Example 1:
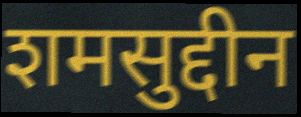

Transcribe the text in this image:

शमसुद्दीन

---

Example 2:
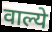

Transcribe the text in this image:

वाल्ये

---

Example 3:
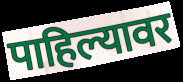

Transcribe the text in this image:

पाहिल्‍यावर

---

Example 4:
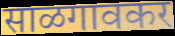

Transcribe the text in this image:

साळगावकर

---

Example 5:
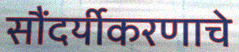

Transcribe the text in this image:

सौंदर्यीकरणाचे